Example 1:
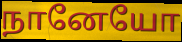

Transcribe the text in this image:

நானேயோ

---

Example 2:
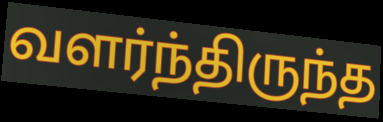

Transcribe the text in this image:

வளர்ந்திருந்த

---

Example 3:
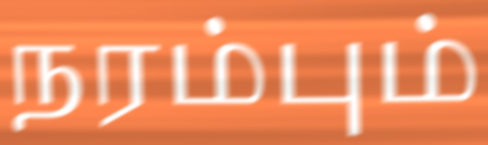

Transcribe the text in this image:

நரம்பும்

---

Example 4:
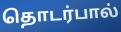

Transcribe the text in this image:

தொடர்பால்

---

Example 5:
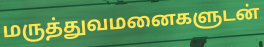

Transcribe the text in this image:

மருத்துவமனைகளுடன்